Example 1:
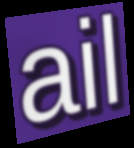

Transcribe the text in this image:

ail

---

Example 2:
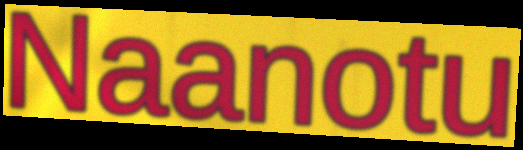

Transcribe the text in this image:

Naanotu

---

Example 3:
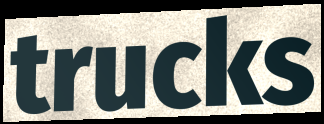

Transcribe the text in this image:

trucks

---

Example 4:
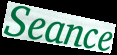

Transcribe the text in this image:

Seance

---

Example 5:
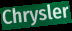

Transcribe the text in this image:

Chrysler